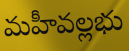
మహీవల్లభు